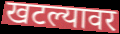
खटल्यावर